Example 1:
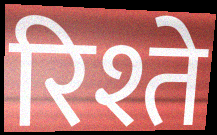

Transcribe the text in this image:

रिश्ते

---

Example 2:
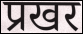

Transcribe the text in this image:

प्रखर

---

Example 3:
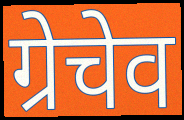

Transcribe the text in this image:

ग्रेचेव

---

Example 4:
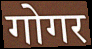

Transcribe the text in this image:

गोगर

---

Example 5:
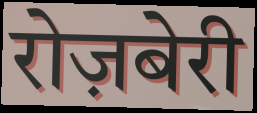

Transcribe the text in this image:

रोज़बेरी